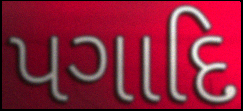
પગાદિ